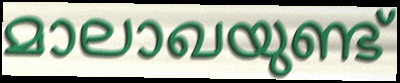
മാലാഖയുണ്ട്